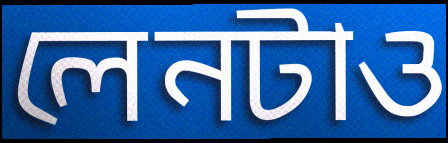
লেনটাও